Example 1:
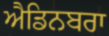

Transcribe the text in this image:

ਐਡਿਨਬਰਾ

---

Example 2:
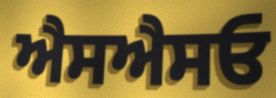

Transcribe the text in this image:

ਐਸਐਸਓ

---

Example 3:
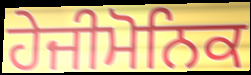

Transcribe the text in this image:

ਹੇਜੀਮੋਨਿਕ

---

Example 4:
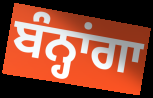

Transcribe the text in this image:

ਬੰਨ੍ਹਾਂਗਾ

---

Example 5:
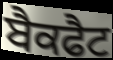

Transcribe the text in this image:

ਬੈਕਫੈਟ